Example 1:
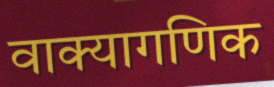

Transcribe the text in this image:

वाक्यागणिक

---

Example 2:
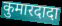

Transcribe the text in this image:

कुमारदादा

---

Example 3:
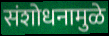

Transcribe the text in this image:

संशोधनामुळे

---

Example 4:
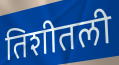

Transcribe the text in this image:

तिशीतली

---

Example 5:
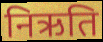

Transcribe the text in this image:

निऋति